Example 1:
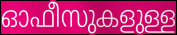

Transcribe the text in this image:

ഓഫീസുകളുള്ള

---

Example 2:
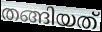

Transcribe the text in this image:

തങ്ങിയത്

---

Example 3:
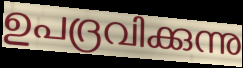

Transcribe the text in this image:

ഉപദ്രവിക്കുന്നു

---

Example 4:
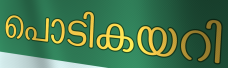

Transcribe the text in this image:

പൊടികയറി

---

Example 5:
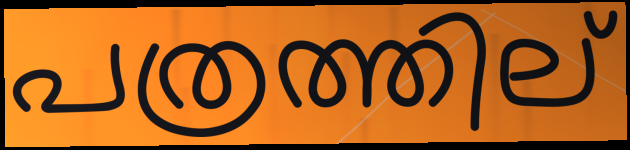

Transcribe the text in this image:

പത്രത്തില്